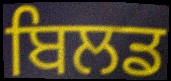
ਬਿਲਡ